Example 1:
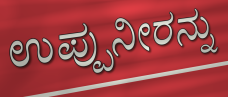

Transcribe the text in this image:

ಉಪ್ಪುನೀರನ್ನು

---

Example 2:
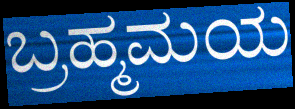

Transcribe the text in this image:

ಬ್ರಹ್ಮಮಯ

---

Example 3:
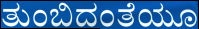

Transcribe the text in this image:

ತುಂಬಿದಂತೆಯೂ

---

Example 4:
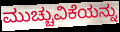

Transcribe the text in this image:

ಮುಚ್ಚುವಿಕೆಯನ್ನು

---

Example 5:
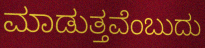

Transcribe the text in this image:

ಮಾಡುತ್ತವೆಂಬುದು